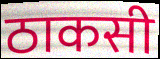
ठाकसी